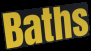
Baths